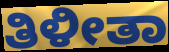
ತಿಳೀತಾ